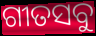
ଗୀତସବୁ